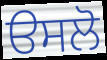
ੳਸਲੋ